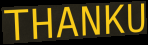
THANKU